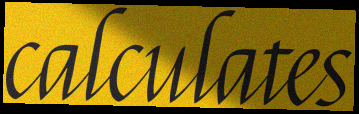
calculates